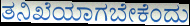
ತನಿಖೆಯಾಗಬೇಕೆಂದು